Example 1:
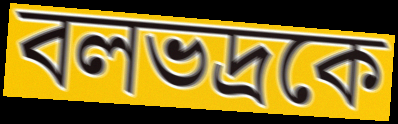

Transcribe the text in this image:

বলভদ্রকে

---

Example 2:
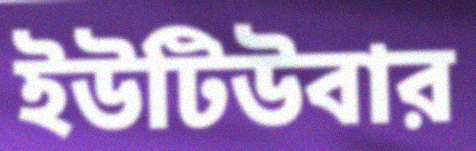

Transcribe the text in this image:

ইউটিউবার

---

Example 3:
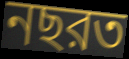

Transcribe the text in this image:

নছরত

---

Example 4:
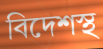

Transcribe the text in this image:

বিদেশস্থ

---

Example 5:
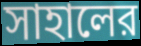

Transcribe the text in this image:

সাহালের